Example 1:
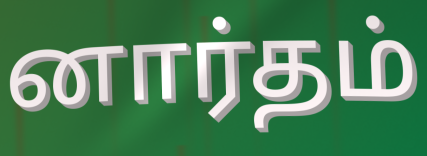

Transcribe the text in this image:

னார்தம்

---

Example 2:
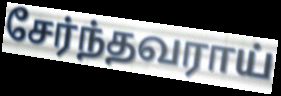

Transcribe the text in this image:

சேர்ந்தவராய்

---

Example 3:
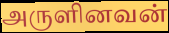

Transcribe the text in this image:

அருளினவன்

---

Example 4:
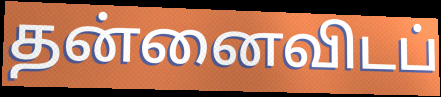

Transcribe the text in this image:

தன்னைவிடப்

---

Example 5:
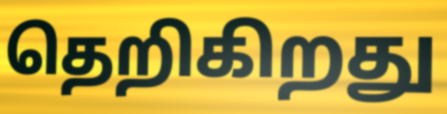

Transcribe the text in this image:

தெறிகிறது